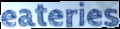
eateries